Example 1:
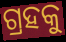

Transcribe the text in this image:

ଗ୍ରହକୁ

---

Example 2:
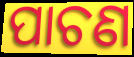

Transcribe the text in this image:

ପାଚଣ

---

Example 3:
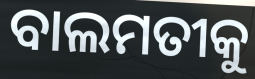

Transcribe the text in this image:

ବାଲମତୀକୁ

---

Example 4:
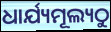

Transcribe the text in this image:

ଧାର୍ଯ୍ୟମୂଲ୍ୟଠୁ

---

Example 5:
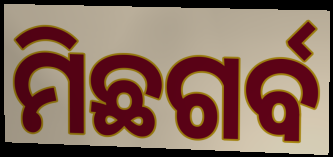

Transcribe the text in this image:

ମିଛଗର୍ବ